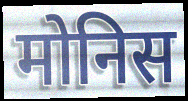
मोनिस